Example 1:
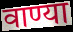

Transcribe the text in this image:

वाण्या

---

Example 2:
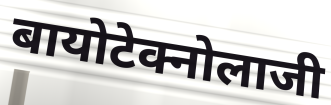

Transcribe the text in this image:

बायोटेक्नोलाजी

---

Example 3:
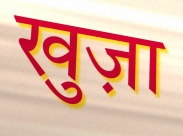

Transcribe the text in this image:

खुज़ा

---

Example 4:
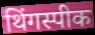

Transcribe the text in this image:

थिंगस्पीक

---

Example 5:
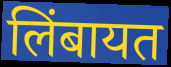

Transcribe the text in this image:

लिंबायत